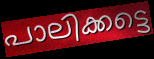
പാലിക്കട്ടെ